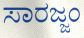
ಸಾರಜ್ಜಂ